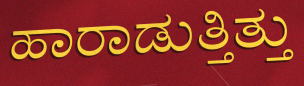
ಹಾರಾಡುತ್ತಿತ್ತು